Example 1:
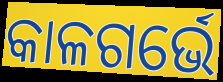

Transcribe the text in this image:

କାଳଗର୍ଭେ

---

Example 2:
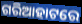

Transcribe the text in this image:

ଗରିଆହାଟରେ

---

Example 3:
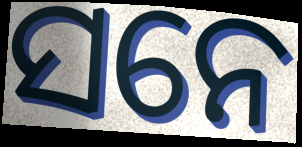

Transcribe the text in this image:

ସନେ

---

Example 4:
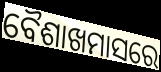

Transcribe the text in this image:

ବୈଶାଖମାସରେ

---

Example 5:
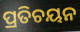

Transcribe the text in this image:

ପ୍ରତିଚୟନ